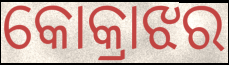
କୋକ୍ରାଝର